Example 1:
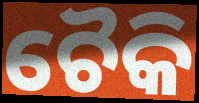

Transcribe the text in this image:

ଚୈକି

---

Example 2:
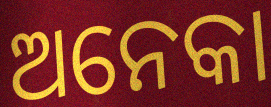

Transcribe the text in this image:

ଅନେକା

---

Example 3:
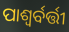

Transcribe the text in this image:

ପାଶ୍ୱର୍ବର୍ତ୍ତୀ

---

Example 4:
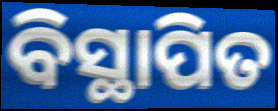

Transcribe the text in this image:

ବିସ୍ଥାପିତ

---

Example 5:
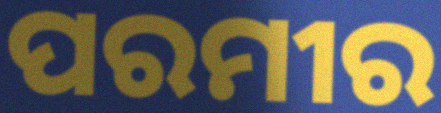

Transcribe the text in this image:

ପରମୀର